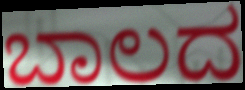
ಬಾಲದ